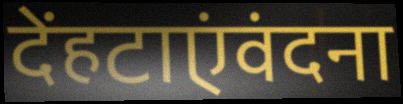
देंहटाएंवंदना